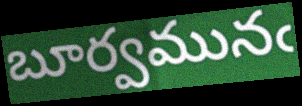
బూర్వమునఁ